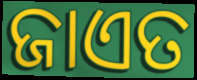
ଜାଏତ